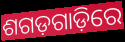
ଶଗଡ଼ଗାଡ଼ିରେ